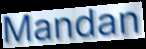
Mandan